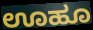
ಊಹೂ